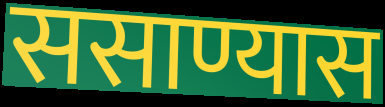
ससाण्यास